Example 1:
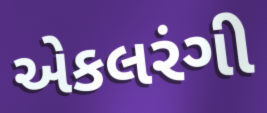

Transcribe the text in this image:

એકલરંગી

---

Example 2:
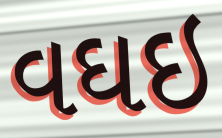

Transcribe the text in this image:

વઘઇ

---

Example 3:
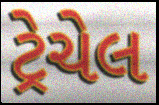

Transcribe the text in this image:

ટ્રેચેલ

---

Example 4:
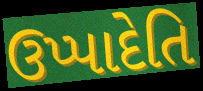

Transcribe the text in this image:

ઉપ્પાદેતિ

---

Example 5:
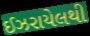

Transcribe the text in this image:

ઈઝરાયેલથી